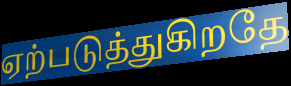
ஏற்படுத்துகிறதே